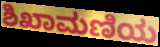
ಶಿಖಾಮಣಿಯ